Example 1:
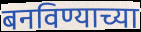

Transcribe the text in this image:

बनविण्याच्या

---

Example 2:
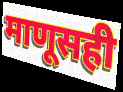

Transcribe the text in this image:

माणूसही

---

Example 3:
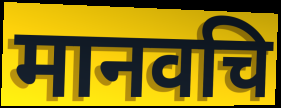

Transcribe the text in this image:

मानवचि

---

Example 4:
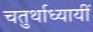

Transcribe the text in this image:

चतुर्थाध्यायीं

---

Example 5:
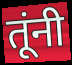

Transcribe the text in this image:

तूंनी